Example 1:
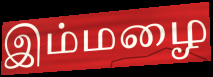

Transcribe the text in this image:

இம்மழை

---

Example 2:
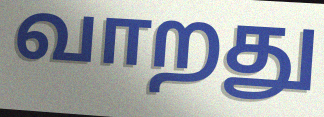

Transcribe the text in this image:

வாறது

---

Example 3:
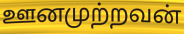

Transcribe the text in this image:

ஊனமுற்றவன்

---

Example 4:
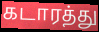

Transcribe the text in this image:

கடாரத்து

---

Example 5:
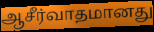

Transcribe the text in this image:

ஆசீர்வாதமானது